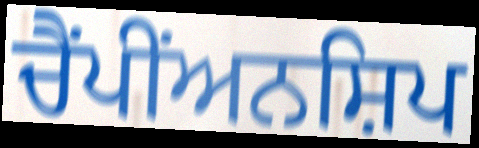
ਚੈਂਪੀਂਅਨਸ਼ਿਪ